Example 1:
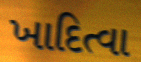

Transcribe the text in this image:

ખાદિત્વા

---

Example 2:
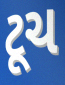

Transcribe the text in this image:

ટૂચ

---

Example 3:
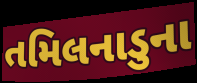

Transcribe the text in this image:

તમિલનાડુના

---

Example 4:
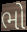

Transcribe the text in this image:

ભો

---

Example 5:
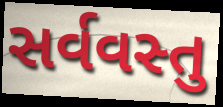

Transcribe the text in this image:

સર્વવસ્તુ